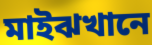
মাইঝখানে